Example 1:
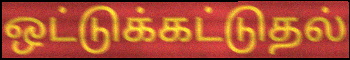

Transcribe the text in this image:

ஒட்டுக்கட்டுதல்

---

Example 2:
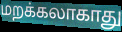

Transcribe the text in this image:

மறக்கலாகாது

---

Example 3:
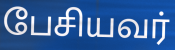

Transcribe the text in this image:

பேசியவர்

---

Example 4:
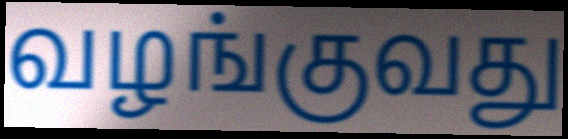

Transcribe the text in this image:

வழங்குவது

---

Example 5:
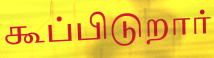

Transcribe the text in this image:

கூப்பிடுறார்